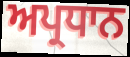
ਅਪ੍ਰਧਾਨ